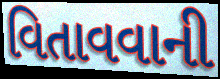
વિતાવવાની